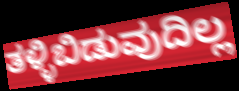
ತಳ್ಳಿಬಿಡುವುದಿಲ್ಲ